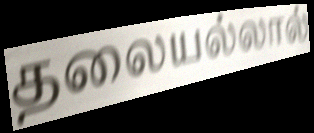
தலையல்லால்